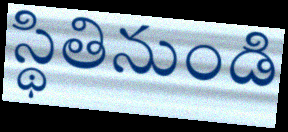
స్థితినుండి